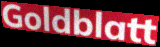
Goldblatt